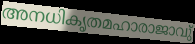
അനധികൃതമഹാരാജാവു്